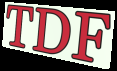
TDF